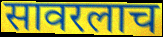
सावरलाच